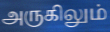
அருகிலும்